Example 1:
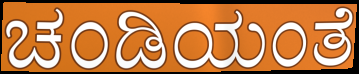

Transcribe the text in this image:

ಚಂಡಿಯಂತೆ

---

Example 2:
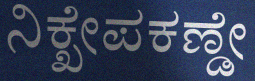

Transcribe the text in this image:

ನಿಕ್ಖೇಪಕಣ್ಡೇ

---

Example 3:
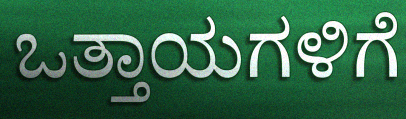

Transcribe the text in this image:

ಒತ್ತಾಯಗಳಿಗೆ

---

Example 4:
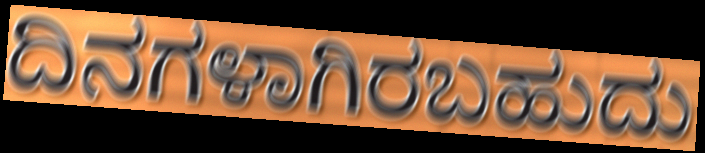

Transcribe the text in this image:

ದಿನಗಳಾಗಿರಬಹುದು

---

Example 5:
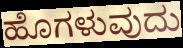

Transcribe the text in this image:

ಹೊಗಳುವುದು